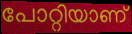
പോറ്റിയാണ്